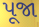
પૂજા